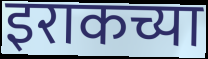
इराकच्या